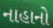
નાહાનો